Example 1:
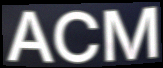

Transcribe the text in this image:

ACM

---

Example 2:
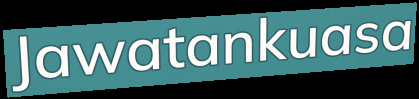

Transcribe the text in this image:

Jawatankuasa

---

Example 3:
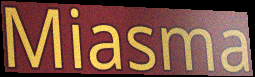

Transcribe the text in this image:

Miasma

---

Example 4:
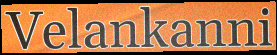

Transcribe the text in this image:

Velankanni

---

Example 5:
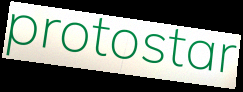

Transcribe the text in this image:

protostar